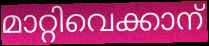
മാറ്റിവെക്കാന്